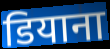
डियाना